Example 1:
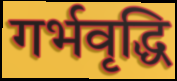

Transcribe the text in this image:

गर्भवृद्धि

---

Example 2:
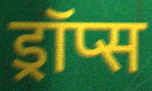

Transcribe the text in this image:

ड्रॉप्स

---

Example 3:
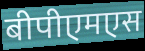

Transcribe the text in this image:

बीपीएमएस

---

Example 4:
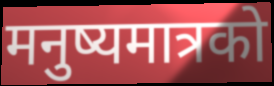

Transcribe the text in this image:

मनुष्यमात्रको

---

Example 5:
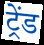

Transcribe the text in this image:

ट्रेंड